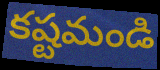
కష్టమండి